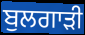
ਬੁਲਗਾੜੀ